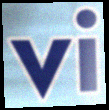
vi